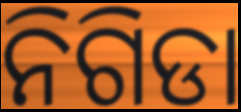
ନିଗିଡା